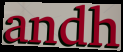
andh